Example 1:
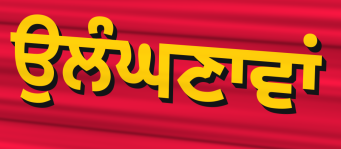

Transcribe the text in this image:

ਉਲੰਘਣਾਵਾਂ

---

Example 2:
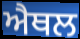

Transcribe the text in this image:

ਐਥਲ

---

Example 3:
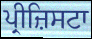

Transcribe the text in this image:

ਪ੍ਰੀਜ਼ਿਸਟਾ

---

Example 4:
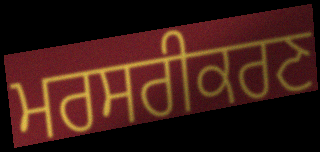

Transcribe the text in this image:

ਮਰਸਰੀਕਰਣ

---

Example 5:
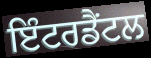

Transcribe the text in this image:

ਇੰਟਰਡੈਂਟਲ